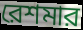
রেশমার